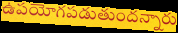
ఉపయోగపడుతుందన్నారు